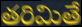
తరిమితే